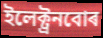
ইলেক্ট্ৰনবোৰ